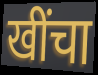
खींचा